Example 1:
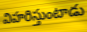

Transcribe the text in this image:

విహరిస్తుంటాడు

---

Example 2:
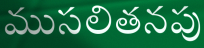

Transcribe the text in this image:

ముసలితనపు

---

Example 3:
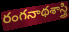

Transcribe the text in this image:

రంగనాథశాస్త్రి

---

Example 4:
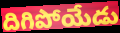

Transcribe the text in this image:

దిగిపోయేడు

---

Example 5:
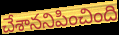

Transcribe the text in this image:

చేశాననిపించింది